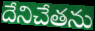
దేనిచేతను